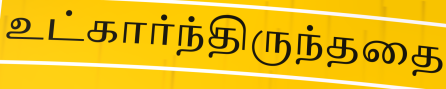
உட்கார்ந்திருந்ததை